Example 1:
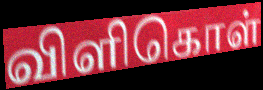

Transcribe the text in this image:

விளிகொள்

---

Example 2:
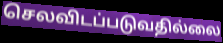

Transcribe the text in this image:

செலவிடப்படுவதில்லை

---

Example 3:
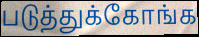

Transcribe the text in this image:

படுத்துக்கோங்க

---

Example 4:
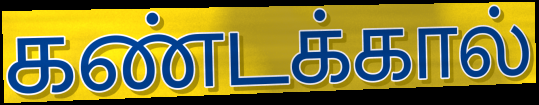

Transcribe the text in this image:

கண்டக்கால்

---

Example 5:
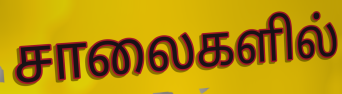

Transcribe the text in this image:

சாலைகளில்